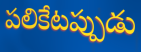
పలికేటప్పుడు